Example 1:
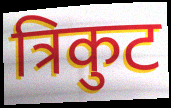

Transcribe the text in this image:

त्रिकुट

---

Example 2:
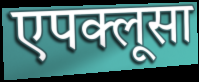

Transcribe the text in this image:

एपक्लूसा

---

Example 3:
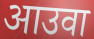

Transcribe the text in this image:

आउवा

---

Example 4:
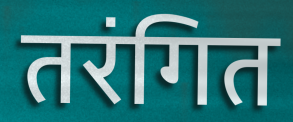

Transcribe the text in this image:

तरंगित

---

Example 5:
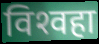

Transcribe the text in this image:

विश्वहा